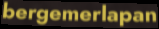
bergemerlapan